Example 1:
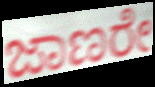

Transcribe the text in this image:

ಜಾಣರೇ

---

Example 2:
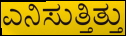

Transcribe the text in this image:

ಎನಿಸುತ್ತಿತ್ತು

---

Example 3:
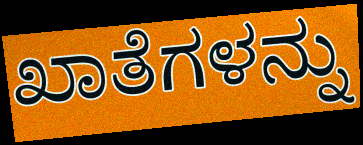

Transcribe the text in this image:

ಖಾತೆಗಳನ್ನು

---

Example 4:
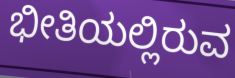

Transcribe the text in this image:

ಭೀತಿಯಲ್ಲಿರುವ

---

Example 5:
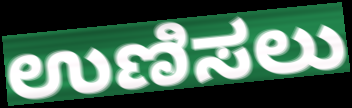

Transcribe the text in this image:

ಉಣಿಸಲು